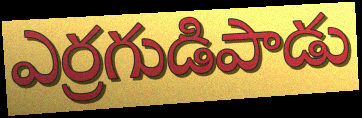
ఎర్రగుడిపాడు